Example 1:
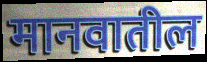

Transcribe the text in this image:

मानवातील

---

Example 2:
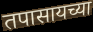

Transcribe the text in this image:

तपासायच्या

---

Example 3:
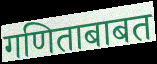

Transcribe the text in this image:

गणिताबाबत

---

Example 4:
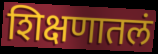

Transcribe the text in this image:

शिक्षणातलं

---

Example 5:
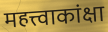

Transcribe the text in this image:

महत्त्वाकांक्षा